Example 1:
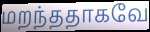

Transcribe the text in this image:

மறந்ததாகவே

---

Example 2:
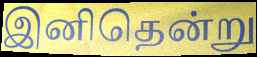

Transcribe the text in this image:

இனிதென்று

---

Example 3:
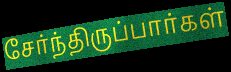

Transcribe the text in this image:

சேர்ந்திருப்பார்கள்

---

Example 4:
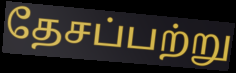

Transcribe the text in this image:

தேசப்பற்று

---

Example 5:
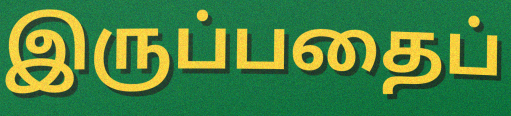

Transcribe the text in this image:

இருப்பதைப்